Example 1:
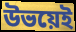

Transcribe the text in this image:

উভয়েই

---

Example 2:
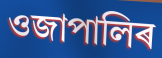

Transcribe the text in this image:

ওজাপালিৰ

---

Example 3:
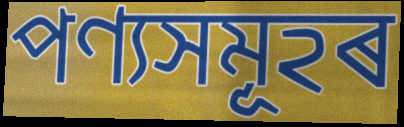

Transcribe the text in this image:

পণ্যসমূহৰ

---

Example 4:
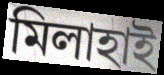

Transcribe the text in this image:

মিলাহাই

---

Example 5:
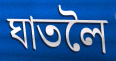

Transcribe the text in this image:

ঘাতলৈ